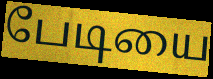
பேடியை